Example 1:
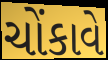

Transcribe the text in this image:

ચોંકાવે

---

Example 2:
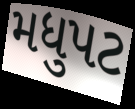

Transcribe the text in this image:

મધુપટ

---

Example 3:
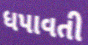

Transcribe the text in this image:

ધપાવતી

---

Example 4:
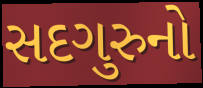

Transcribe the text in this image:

સદગુરુનો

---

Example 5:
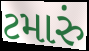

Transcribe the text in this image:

ટમારું